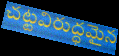
చట్టవిరుద్ధమైన